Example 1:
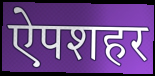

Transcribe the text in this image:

ऐपशहर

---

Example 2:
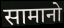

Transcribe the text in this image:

सामानो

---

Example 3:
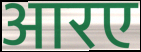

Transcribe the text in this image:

आरए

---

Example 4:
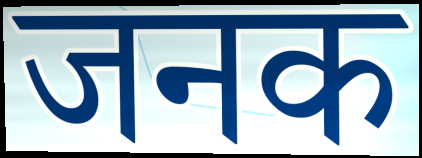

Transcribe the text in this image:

जनक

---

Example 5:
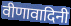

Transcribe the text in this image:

वीणावादिनी